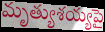
మృత్యుశయ్యపై